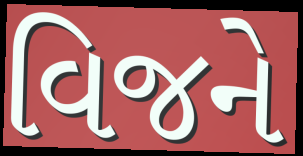
વિજને